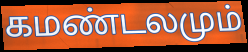
கமண்டலமும்